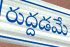
రుద్దడమే